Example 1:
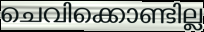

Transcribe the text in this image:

ചെവിക്കൊണ്ടില്ല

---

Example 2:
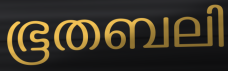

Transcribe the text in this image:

ഭൂതബലി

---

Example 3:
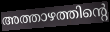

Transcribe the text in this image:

അത്താഴത്തിന്റെ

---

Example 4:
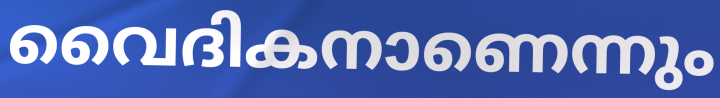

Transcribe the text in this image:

വൈദികനാണെന്നും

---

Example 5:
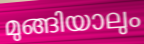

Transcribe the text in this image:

മുങ്ങിയാലും